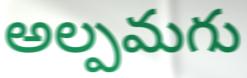
అల్పమగు